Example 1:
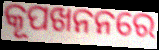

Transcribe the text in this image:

କୂପଖନନରେ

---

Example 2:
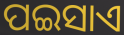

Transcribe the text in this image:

ପଇସାଏ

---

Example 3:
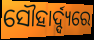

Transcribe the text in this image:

ସୌହାର୍ଦ୍ଦ୍ୟରେ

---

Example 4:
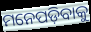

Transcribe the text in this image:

ମନେପଡ଼ିବାକୁ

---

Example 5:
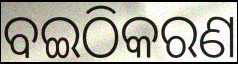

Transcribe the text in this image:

ବଇଠିକରଣ